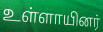
உள்ளாயினர்